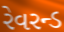
રેવરન્ડ